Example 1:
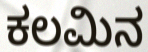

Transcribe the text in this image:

ಕಲಮಿನ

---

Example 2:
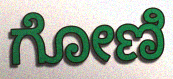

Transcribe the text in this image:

ಗೋಣಿ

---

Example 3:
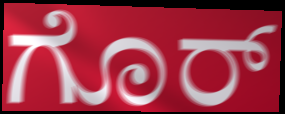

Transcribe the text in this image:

ಗೊರ್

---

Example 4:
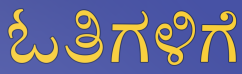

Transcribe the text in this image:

ಓತಿಗಳಿಗೆ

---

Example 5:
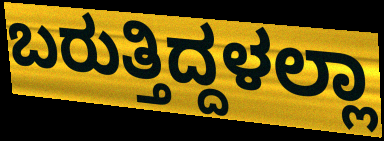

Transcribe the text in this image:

ಬರುತ್ತಿದ್ದಳಲ್ಲಾ